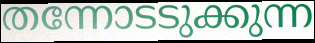
തന്നോടടുക്കുന്ന